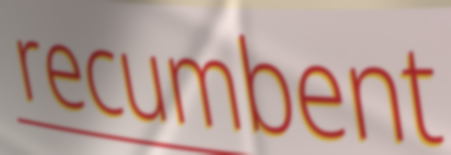
recumbent